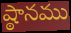
ష్ఠానము